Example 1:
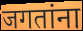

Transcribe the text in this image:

जगतांना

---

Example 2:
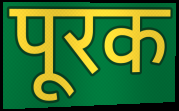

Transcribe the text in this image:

पूरक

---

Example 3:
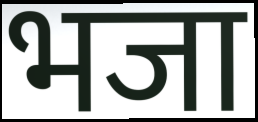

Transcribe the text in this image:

भजा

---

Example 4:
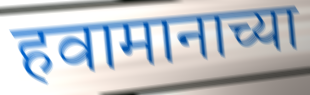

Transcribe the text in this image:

हवामानाच्या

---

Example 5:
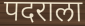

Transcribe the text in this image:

पदराला